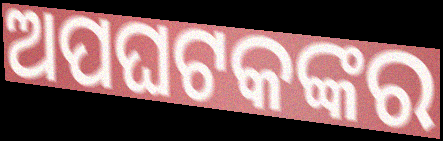
ଅପଘଟକଙ୍କର